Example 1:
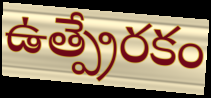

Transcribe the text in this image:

ఉత్ప్రేరకం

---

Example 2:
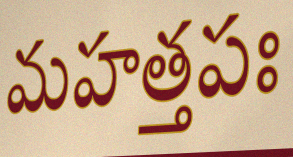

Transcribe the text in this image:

మహత్తపః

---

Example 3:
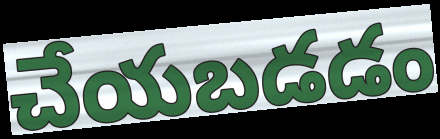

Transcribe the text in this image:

చేయబడడం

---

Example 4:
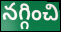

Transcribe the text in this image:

నగ్గించి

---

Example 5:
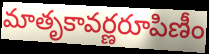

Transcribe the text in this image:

మాతృకావర్ణరూపిణీం